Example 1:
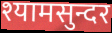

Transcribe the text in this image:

श्यामसुन्दर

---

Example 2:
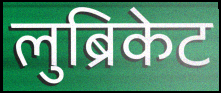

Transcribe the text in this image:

लुब्रिकेट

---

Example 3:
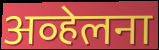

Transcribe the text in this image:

अव्हेलना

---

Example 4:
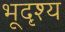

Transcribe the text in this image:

भूदृश्य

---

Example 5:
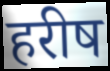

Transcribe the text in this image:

हरीष